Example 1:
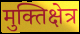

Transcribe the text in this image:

मुक्तिक्षेत्र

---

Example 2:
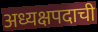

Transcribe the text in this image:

अध्यक्षपदाची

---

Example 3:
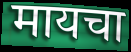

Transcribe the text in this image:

मायचा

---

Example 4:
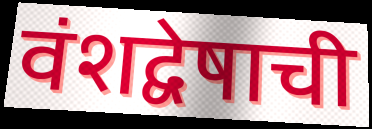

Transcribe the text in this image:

वंशद्वेषाची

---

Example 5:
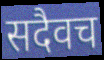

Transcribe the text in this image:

सदैवच